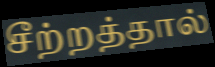
சீற்றத்தால்